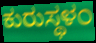
ಕುರುಸ್ಥಳಂ